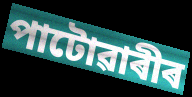
পাটোৱাৰীৰ